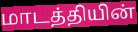
மாடத்தியின்